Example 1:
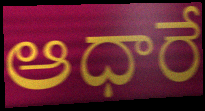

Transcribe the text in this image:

ఆధారే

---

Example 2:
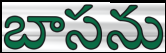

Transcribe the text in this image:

బాసను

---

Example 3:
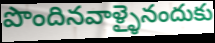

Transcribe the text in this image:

పొందినవాళ్ళైనందుకు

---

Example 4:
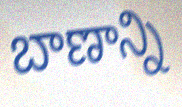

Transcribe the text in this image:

బాణాన్ని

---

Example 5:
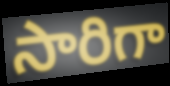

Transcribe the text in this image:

సారిగా